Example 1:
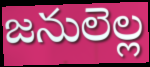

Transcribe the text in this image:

జనులెల్ల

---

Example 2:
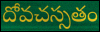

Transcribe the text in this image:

దోవచస్సతం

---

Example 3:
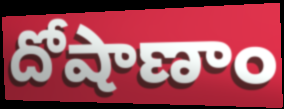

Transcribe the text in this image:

దోషాణాం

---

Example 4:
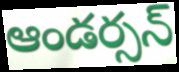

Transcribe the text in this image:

ఆండర్సన్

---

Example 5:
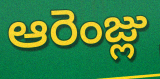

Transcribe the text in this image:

ఆరెంజ్లు